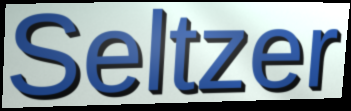
Seltzer